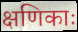
क्षणिकाः